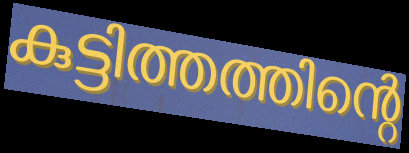
കുട്ടിത്തത്തിന്റെ